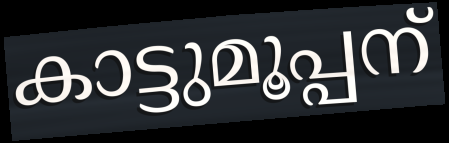
കാട്ടുമൂപ്പന്